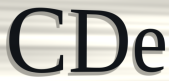
CDe